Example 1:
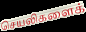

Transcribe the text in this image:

செயலிகளைக்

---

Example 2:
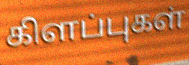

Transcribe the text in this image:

கிளப்புகள்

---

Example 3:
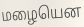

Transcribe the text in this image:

மழையென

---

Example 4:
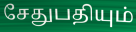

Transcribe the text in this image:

சேதுபதியும்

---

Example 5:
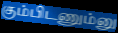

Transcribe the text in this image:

கும்பிடணும்னு